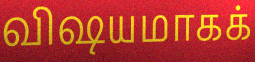
விஷயமாகக்